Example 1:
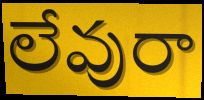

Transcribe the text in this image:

లేవురా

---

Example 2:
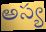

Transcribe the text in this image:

అస్య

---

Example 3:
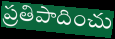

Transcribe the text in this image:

ప్రతిపాదించు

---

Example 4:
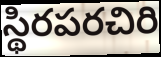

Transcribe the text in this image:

స్థిరపరచిరి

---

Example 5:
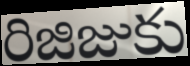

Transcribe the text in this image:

రిజిజుకు